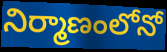
నిర్మాణంలోనో